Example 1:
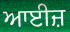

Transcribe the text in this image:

ਆਈਜ਼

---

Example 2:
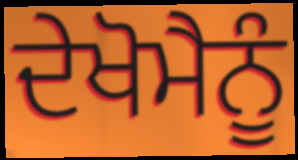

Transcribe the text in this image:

ਦੇਖੋਮੈਨੂੰ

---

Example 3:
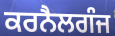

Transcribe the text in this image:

ਕਰਨੈਲਗੰਜ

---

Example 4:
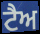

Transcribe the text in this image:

ਟੈਅ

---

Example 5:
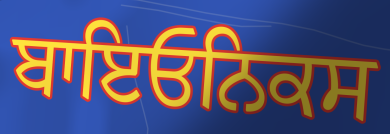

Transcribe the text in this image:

ਬਾਇਓਨਿਕਸ